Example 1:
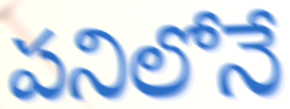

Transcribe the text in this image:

పనిలోనే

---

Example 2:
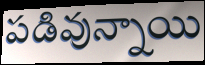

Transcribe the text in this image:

పడివున్నాయి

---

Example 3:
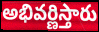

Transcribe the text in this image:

అభివర్ణిస్తారు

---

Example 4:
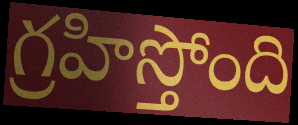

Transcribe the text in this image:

గ్రహిస్తోంది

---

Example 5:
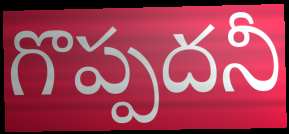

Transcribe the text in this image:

గొప్పదనీ